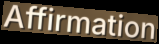
Affirmation